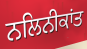
ਨਲਿਨੀਕਾਂਤ